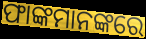
ଫାଙ୍କମାନଙ୍କରେ